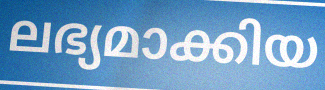
ലഭ്യമാക്കിയ